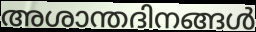
അശാന്തദിനങ്ങൾ